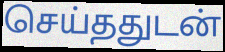
செய்ததுடன்